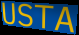
USTA